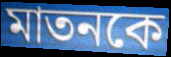
মাতনকে